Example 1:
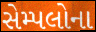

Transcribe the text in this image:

સેમ્પલોના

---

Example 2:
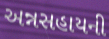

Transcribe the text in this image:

અન્નસહાયની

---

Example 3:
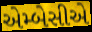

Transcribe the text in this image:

એમ્બેસીએ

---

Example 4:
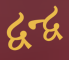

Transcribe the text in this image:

દ્વન્દ્વ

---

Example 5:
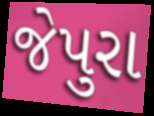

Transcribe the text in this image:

જેપુરા